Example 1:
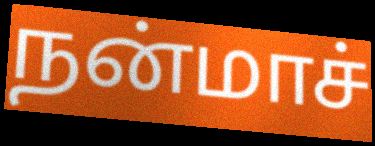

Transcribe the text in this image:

நன்மாச்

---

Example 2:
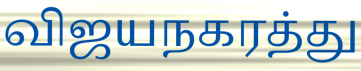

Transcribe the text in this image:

விஜயநகரத்து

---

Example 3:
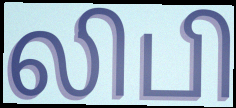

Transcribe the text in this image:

லிபி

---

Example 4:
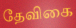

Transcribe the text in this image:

தேவிகை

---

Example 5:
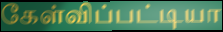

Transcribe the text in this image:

கேள்விப்பட்டியா